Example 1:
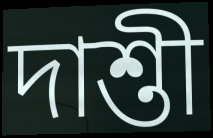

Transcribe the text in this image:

দাশ্তী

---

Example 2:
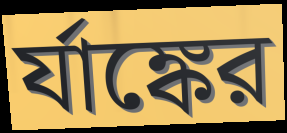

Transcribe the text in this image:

র্যাঙ্কের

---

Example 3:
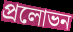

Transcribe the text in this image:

প্রলোভন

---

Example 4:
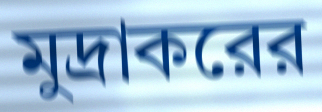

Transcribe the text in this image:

মুদ্রাকরের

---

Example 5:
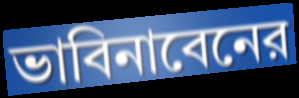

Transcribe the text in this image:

ভাবিনাবেনের